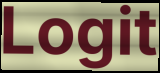
Logit